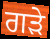
ਗੜੇ